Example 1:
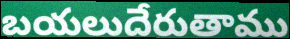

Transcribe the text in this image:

బయలుదేరుతాము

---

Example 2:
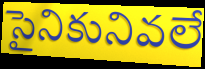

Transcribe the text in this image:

సైనికునివలే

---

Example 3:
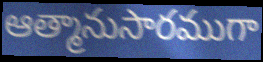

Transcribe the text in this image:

ఆత్మానుసారముగా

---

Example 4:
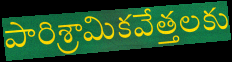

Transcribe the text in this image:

పారిశ్రామికవేత్తలకు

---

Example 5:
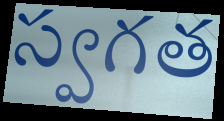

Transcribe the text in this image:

స్వగత